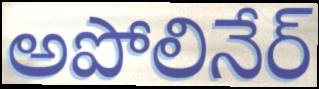
అపోలినేర్